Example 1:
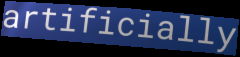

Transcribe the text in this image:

artificially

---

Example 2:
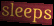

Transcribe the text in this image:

sleeps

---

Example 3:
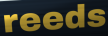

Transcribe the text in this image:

reeds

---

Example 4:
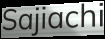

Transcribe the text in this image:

Sajiachi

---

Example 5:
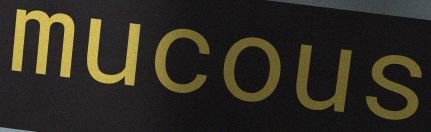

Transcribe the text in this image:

mucous